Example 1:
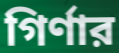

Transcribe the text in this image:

গির্ণার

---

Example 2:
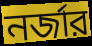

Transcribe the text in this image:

নর্জার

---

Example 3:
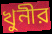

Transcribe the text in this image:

খুনীর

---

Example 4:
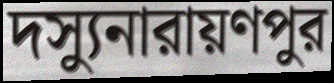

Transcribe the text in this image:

দস্যুনারায়ণপুর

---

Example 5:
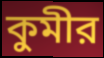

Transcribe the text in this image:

কুমীর